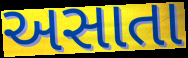
અસાતા